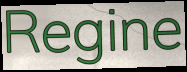
Regine